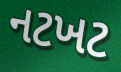
નટખટ